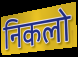
निकलो